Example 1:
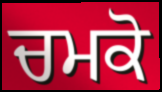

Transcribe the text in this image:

ਚਮਕੋ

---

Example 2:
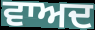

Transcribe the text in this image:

ਵਾਅਦ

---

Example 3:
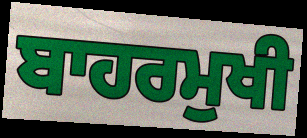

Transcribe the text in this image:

ਬਾਹਰਮੁਖੀ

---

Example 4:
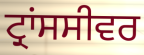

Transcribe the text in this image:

ਟ੍ਰਾਂਸਸੀਵਰ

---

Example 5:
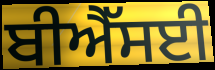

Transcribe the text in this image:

ਬੀਐੱਸਈ